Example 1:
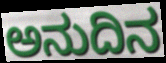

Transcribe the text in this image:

ಅನುದಿನ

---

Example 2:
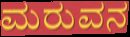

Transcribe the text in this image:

ಮರುವನ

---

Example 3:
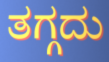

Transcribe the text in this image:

ತಗ್ಗದು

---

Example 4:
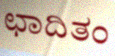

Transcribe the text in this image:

ಛಾದಿತಂ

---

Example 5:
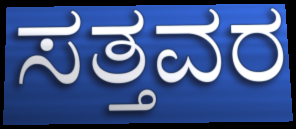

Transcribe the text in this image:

ಸತ್ತವರ